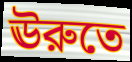
ঊরুতে